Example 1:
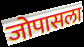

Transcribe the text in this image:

जोपासला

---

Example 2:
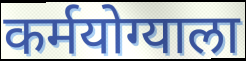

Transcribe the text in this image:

कर्मयोग्याला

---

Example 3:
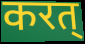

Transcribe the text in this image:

करत्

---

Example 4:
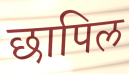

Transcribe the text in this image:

छापिल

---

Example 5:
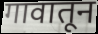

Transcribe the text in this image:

गावातून